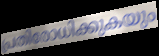
പ്രതിരോധിക്കുകയും